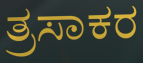
ತ್ರಸಾಕರ